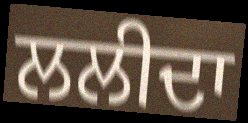
ਲਲੀਦਾ